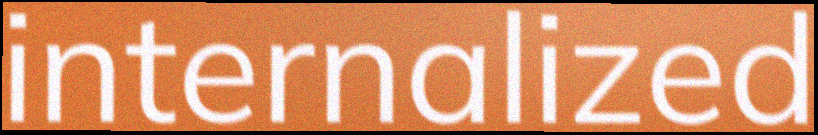
internalized